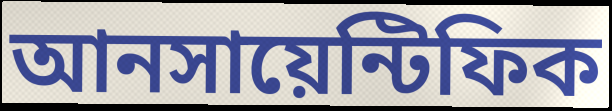
আনসায়েন্টিফিক